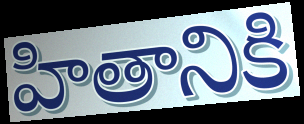
హితానికి